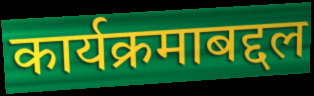
कार्यक्रमाबद्दल